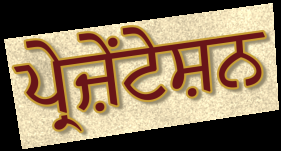
ਪ੍ਰੇਜ਼ੇਂਟੇਸ਼ਨ